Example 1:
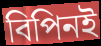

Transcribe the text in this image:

বিপিনই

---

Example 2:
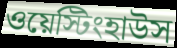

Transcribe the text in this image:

ওয়েস্টিংহাউস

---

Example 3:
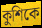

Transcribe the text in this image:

কুশিকে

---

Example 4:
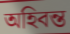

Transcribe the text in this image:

অহিবন্ত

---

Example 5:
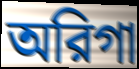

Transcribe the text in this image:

অরিগা